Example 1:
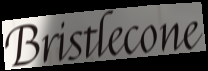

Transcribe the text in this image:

Bristlecone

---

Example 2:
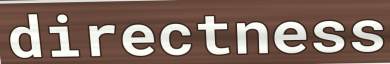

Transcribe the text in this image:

directness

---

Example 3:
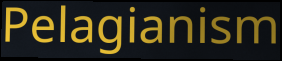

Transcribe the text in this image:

Pelagianism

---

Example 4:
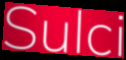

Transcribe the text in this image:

Sulci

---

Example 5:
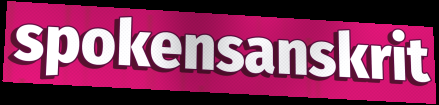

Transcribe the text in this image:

spokensanskrit